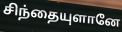
சிந்தையுளானே